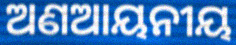
ଅଣଆୟନୀୟ